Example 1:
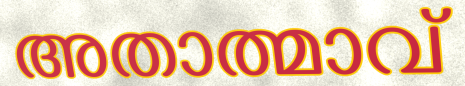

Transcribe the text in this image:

അതാത്മാവ്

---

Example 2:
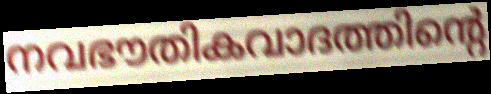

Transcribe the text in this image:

നവഭൗതികവാദത്തിന്റെ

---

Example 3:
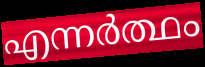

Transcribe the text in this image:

എന്നർത്ഥം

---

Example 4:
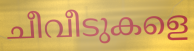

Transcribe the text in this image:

ചീവീടുകളെ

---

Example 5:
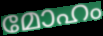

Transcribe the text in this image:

മോഹം